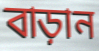
বাড়ান